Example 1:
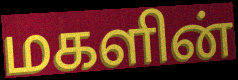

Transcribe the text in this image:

மகளின்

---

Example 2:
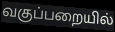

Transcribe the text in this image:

வகுப்பறையில்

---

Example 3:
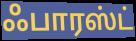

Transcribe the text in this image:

ஃபாரஸ்ட்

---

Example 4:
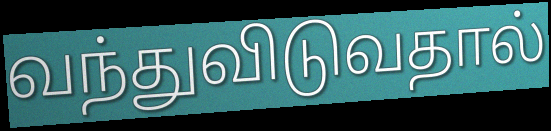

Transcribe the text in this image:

வந்துவிடுவதால்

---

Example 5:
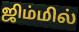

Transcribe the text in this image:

ஜிம்மில்